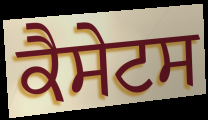
ਕੈਸੇਟਸ